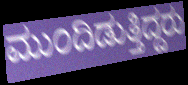
ಮುಂದಿಡುತ್ತಿದ್ದರು